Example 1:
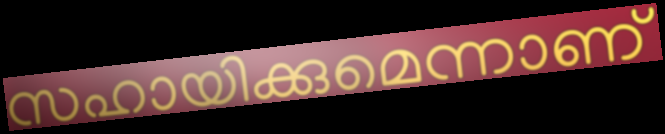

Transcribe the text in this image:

സഹായിക്കുമെന്നാണ്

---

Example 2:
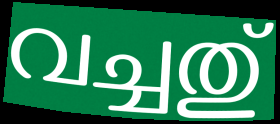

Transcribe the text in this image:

വച്ചതു്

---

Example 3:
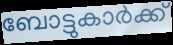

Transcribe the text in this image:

ബോട്ടുകാർക്ക്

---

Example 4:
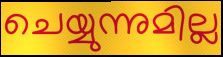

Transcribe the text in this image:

ചെയ്യുന്നുമില്ല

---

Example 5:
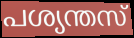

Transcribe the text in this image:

പശ്യന്തസ്